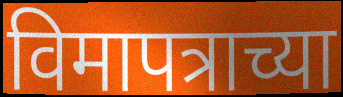
विमापत्राच्या